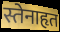
स्तेनाहृत